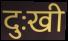
दुःखी